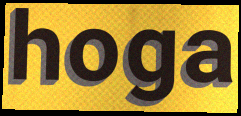
hoga